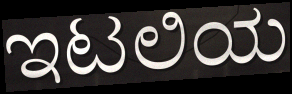
ಇಟಲಿಯ